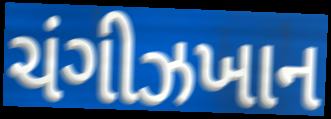
ચંગીઝખાન